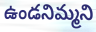
ఉండనిమ్మని